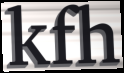
kfh